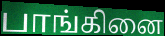
பாங்கினை